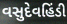
વસુદેવહિંડી